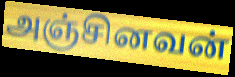
அஞ்சினவன்